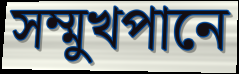
সম্মুখপানে